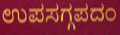
ಉಪಸಗ್ಗಪದಂ